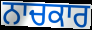
ਨਾਚਕਾਰ